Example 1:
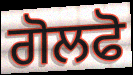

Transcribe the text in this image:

ਗੋਲਫੋ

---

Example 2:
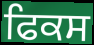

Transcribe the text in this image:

ਫਿਕਸ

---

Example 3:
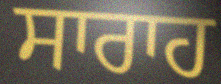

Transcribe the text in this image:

ਸਾਰਾਹ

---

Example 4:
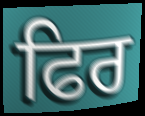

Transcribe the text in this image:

ਫਿਰ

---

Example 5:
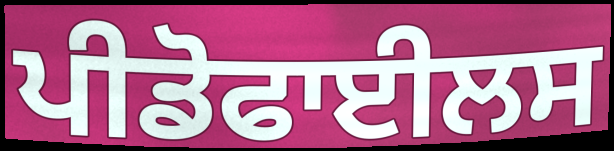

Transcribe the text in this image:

ਪੀਡੋਫਾਈਲਸ